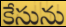
కేసును